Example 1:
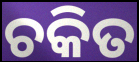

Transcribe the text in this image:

ଚକିତ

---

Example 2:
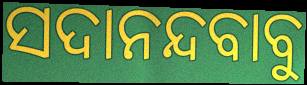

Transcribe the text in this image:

ସଦାନନ୍ଦବାବୁ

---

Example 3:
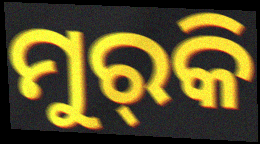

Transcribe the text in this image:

ମୁର୍‌କି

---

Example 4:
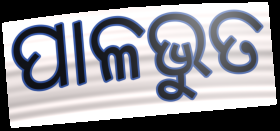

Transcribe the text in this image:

ପାଳଭୁତ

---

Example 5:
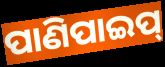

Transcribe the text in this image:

ପାଣିପାଇପ୍